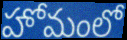
హోమంలో